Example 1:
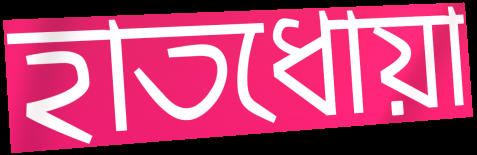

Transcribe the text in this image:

হাতধোয়া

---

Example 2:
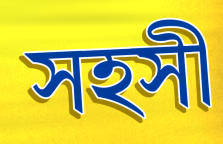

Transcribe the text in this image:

সহসী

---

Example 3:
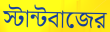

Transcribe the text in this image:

স্টান্টবাজের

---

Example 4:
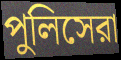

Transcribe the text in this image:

পুলিসেরা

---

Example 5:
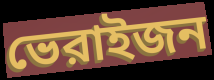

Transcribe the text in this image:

ভেরাইজন